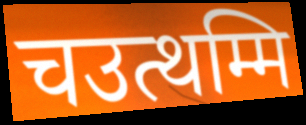
चउत्थम्मि